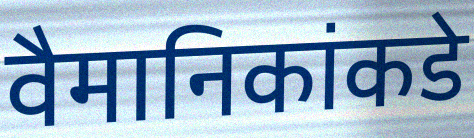
वैमानिकांकडे